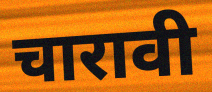
चारावी